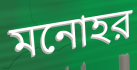
মনোহর